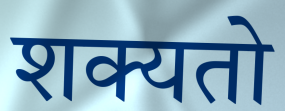
शक्‍यतो